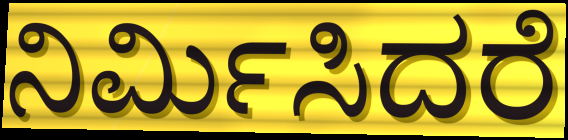
ನಿರ್ಮಿಸಿದರೆ